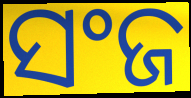
ସଂଜ